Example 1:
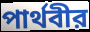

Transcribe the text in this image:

পার্থবীর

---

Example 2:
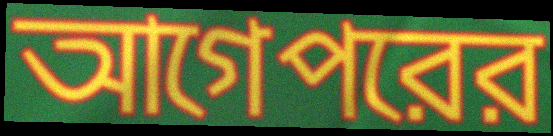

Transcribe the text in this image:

আগেপরের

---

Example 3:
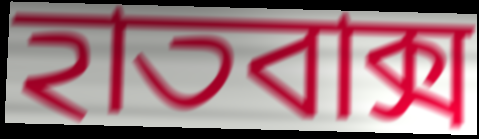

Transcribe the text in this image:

হাতবাক্স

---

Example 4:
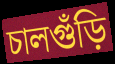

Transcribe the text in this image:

চালগুঁড়ি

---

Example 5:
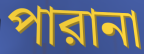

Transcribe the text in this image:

পারানা